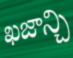
ఖజాన్చి